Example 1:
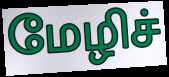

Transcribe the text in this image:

மேழிச்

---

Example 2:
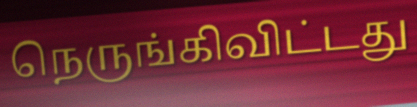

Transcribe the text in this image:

நெருங்கிவிட்டது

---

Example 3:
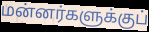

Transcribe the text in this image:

மன்னர்களுக்குப்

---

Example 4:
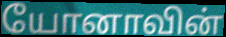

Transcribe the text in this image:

யோனாவின்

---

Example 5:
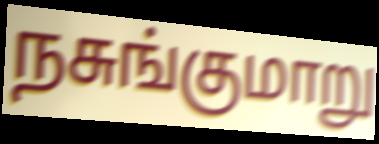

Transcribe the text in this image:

நசுங்குமாறு